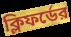
ক্লিফর্ডের